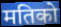
मतिको